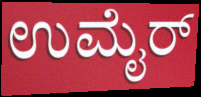
ಉಮೈರ್